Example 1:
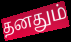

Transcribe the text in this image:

தனதும்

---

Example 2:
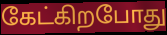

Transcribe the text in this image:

கேட்கிறபோது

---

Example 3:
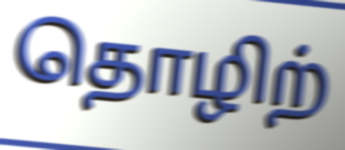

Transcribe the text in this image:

தொழிற்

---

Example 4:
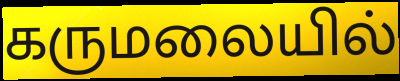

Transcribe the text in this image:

கருமலையில்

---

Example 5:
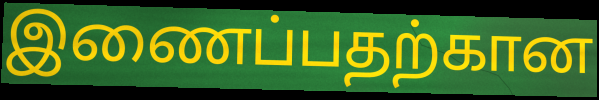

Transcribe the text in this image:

இணைப்பதற்கான